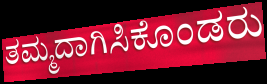
ತಮ್ಮದಾಗಿಸಿಕೊಂಡರು